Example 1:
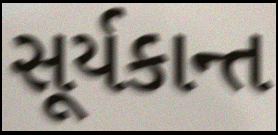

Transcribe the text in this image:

સૂર્યકાન્ત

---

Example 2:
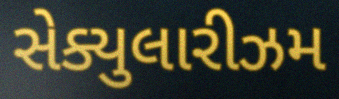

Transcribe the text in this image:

સેક્યુલારીઝમ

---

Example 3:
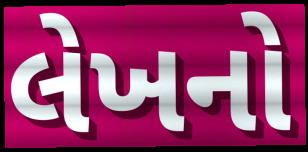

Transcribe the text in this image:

લેખનો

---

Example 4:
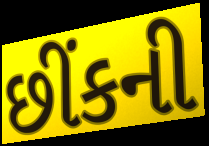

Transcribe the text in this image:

છીંકની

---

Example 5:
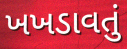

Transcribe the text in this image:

ખખડાવતું